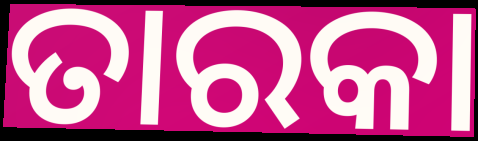
ତାରକା